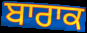
ਬਾਰਾਕ